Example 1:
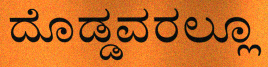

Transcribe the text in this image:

ದೊಡ್ಡವರಲ್ಲೂ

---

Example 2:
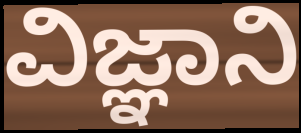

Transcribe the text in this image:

ವಿಜ್ಞಾನಿ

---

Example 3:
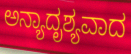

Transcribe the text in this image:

ಅನ್ಯಾದೃಶ್ಯವಾದ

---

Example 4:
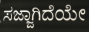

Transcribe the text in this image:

ಸಜ್ಜಾಗಿದೆಯೇ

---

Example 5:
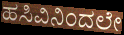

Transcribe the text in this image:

ಹಸಿವಿನಿಂದಲೇ